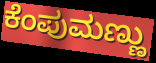
ಕೆಂಪುಮಣ್ಣು